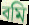
বমি